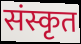
संस्‍कृत